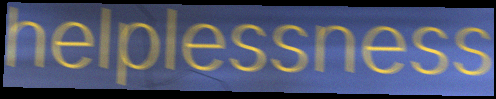
helplessness